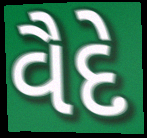
વૈદે